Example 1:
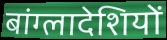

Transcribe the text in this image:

बांग्लादेशियों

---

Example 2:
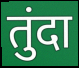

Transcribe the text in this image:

तुंदा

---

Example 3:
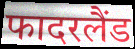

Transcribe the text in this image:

फादरलैंड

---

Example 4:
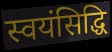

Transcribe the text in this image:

स्वयंसिद्धि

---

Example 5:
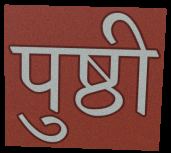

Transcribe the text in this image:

पुष्ठी